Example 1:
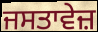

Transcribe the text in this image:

ਜਸਤਾਵੇਜ਼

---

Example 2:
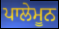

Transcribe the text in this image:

ਪਾਲੇਮੂਨ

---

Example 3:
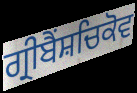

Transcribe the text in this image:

ਗ੍ਰੀਬੈਂਸ਼ਚਿਕੋਵ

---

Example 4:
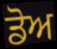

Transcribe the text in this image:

ਡੋਅ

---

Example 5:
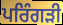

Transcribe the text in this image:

ਪਰਿੰਗੜੀ